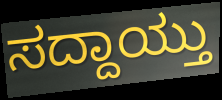
ಸದ್ದಾಯ್ತು